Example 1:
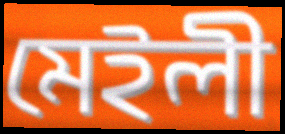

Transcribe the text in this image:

মেইলী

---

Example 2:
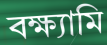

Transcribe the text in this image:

বক্ষ্যামি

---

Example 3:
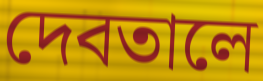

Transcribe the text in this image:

দেবতালে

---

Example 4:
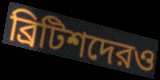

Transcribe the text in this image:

ব্রিটিশদেরও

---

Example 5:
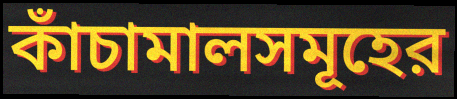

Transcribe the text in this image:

কাঁচামালসমূহের